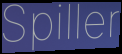
Spiller